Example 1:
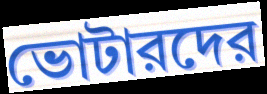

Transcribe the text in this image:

ভোটারদের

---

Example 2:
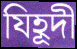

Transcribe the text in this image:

যিহূদী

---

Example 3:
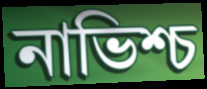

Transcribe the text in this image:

নাভিশ্চ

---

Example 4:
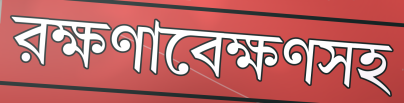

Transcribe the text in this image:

রক্ষণাবেক্ষণসহ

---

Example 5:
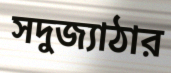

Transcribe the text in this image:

সদুজ্যাঠার